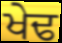
ਖੇਢ